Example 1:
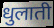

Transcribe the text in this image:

धुलाती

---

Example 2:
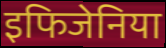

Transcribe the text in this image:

इफिजेनिया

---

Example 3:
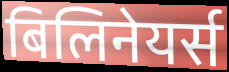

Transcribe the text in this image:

बिलिनेयर्स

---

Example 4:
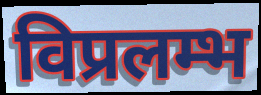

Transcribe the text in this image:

विप्रलम्भ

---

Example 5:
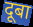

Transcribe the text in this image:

दूबा